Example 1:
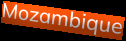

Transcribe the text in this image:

Mozambique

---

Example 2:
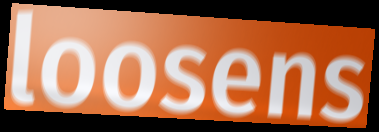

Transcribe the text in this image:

loosens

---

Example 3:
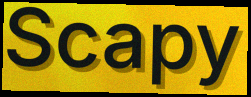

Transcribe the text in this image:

Scapy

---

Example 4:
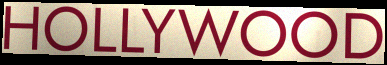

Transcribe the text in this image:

HOLLYWOOD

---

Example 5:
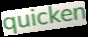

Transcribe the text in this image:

quicken